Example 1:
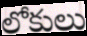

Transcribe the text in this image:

లోకులు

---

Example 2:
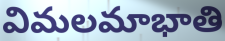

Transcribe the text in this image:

విమలమాభాతి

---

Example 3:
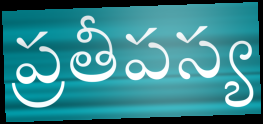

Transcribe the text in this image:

ప్రతీపస్య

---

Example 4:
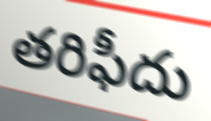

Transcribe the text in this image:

తరిఫీదు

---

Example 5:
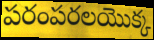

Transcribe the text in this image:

పరంపరలయొక్క